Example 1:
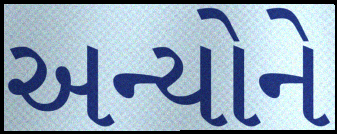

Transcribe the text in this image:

અન્યોને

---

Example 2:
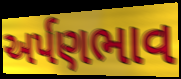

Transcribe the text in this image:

અર્પણભાવ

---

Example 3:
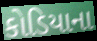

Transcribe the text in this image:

કોડિયાના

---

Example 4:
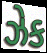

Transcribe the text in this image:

ઝેક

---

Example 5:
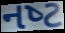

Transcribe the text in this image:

નષ્‍ટ